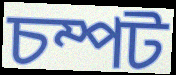
চম্পট